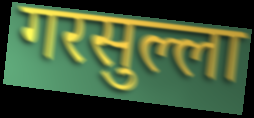
गरसुल्ला